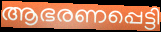
ആഭരണപ്പെട്ടി